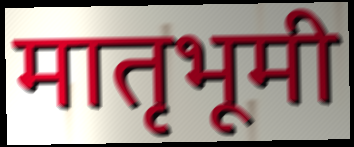
मातृभूमी